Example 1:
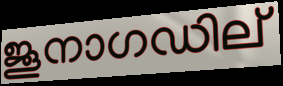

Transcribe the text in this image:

ജൂനാഗഡില്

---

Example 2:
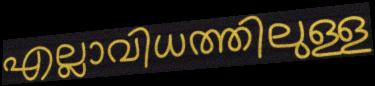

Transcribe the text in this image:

എല്ലാവിധത്തിലുള്ള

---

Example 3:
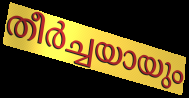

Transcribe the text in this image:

തീർച്ചയായും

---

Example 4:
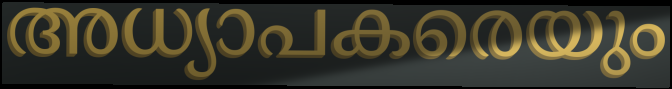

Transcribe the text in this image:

അധ്യാപകരെയും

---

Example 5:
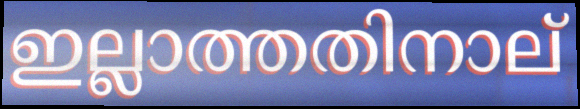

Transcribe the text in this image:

ഇല്ലാത്തതിനാല്